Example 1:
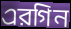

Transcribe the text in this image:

এরগিন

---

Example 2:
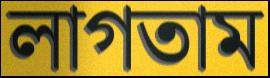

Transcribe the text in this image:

লাগতাম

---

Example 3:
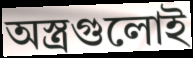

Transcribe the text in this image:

অস্ত্রগুলোই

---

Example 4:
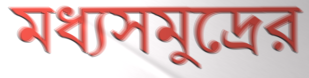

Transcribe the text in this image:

মধ্যসমুদ্রের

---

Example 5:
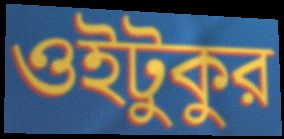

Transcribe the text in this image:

ওইটুকুর